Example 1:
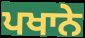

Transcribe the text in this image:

ਪਖਾਨੇ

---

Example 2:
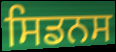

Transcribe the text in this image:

ਸਿਡਨਸ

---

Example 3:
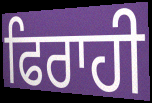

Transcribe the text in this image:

ਫਿਰਾਹੀ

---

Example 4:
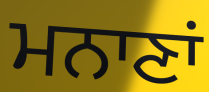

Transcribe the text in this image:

ਮਨਾਣਾਂ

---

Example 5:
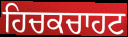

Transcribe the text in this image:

ਹਿਚਕਚਾਹਟ